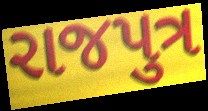
રાજપુત્ર